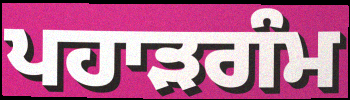
ਪਹਾੜਗੰਮ